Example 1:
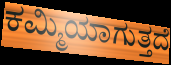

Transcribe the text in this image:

ಕಮ್ಮಿಯಾಗುತ್ತದೆ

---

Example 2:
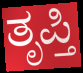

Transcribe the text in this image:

ತೃಪ್ತಿ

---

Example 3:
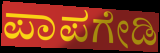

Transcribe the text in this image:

ಪಾಪಗೇಡಿ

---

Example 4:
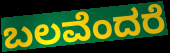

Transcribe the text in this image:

ಬಲವೆಂದರೆ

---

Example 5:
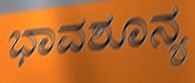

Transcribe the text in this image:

ಭಾವಶೂನ್ಯ